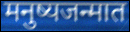
मनुष्यजन्मात